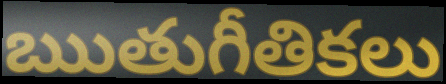
ఋతుగీతికలు